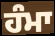
ਹੰਮਾ